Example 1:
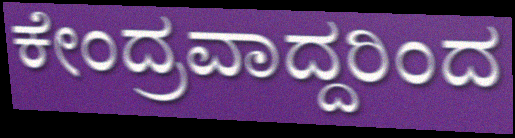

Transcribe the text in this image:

ಕೇಂದ್ರವಾದ್ದರಿಂದ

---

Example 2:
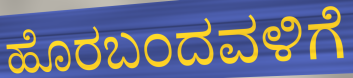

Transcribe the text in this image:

ಹೊರಬಂದವಳಿಗೆ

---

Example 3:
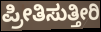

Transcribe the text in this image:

ಪ್ರೀತಿಸುತ್ತೀರಿ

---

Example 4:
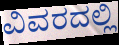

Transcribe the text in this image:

ವಿವರದಲ್ಲಿ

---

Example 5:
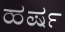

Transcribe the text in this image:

ಹರ್ಷ